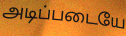
அடிப்படையே